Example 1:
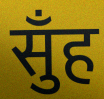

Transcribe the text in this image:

सुँह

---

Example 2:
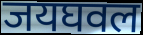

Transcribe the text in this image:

जयघवल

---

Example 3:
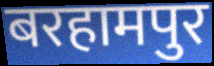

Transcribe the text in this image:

बरहामपुर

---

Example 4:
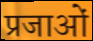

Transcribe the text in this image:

प्रजाओं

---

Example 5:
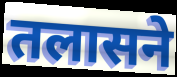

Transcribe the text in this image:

तलासने